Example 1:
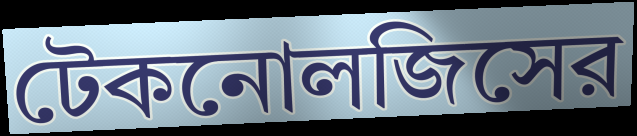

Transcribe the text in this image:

টেকনোলজিসের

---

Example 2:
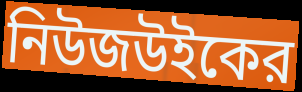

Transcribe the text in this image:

নিউজউইকের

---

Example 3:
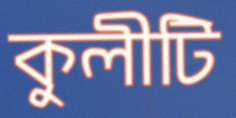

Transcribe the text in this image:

কুলীটি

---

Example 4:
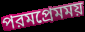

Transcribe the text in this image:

পরমপ্রেমময়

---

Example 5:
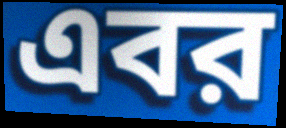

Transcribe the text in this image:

এবর